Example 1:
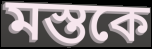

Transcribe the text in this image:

মস্তকে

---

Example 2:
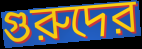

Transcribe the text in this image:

গুরুদের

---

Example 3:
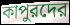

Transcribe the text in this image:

কাপুরদের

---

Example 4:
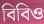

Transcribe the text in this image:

বিবিও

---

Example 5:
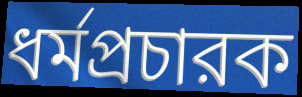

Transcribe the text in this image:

ধর্মপ্রচারক